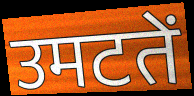
उमटतें